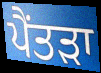
ਪੈਂਤੜਾ